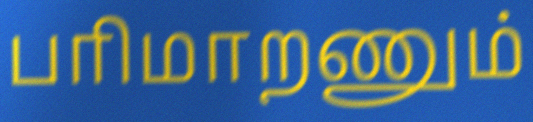
பரிமாறணும்